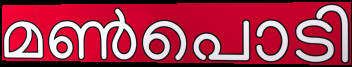
മൺപൊടി